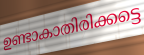
ഉണ്ടാകാതിരിക്കട്ടെ